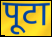
पूटा